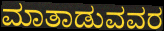
ಮಾತಾಡುವವರ